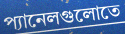
প্যানেলগুলোতে